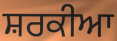
ਸ਼ਰਕੀਆ